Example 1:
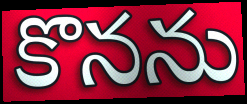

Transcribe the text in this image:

కొనను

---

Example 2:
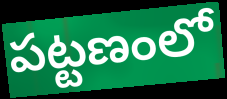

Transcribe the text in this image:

పట్టణంలో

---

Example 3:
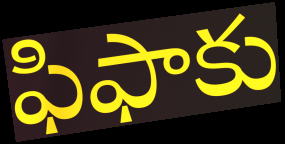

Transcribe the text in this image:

ఫిఫాకు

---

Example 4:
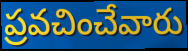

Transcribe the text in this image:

ప్రవచించేవారు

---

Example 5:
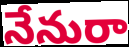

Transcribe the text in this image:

నేనురా